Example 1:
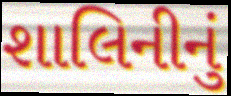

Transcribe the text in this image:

શાલિનીનું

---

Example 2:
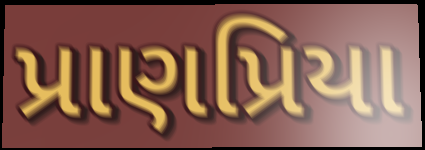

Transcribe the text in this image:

પ્રાણપ્રિયા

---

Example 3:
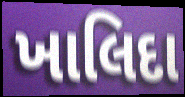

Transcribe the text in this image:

ખાલિદા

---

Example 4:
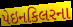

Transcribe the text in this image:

પેઇનકિલરના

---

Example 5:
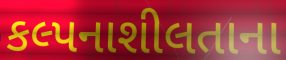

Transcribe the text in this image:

કલ્પનાશીલતાના